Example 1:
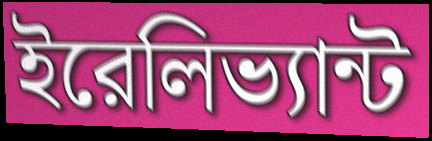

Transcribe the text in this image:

ইরেলিভ্যান্ট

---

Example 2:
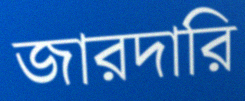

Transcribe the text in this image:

জারদারি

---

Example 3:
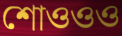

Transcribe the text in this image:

শোওওও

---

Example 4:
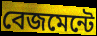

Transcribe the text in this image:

বেজমেন্টে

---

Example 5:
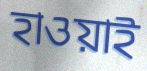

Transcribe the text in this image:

হাওয়াই